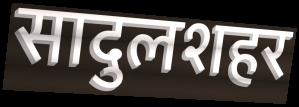
सादुलशहर